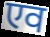
एव